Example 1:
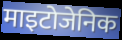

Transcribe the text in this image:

माइटोजेनिक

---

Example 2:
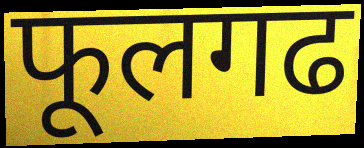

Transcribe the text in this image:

फूलगढ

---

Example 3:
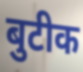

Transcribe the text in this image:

बुटीक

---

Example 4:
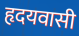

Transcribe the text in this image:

हृदयवासी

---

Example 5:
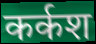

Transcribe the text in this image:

कर्कश